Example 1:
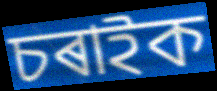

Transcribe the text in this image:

চৰাইক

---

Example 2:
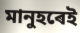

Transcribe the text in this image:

মানুহৰেই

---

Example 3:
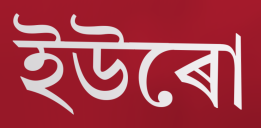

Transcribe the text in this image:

ইউৰো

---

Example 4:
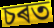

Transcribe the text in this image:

চৰত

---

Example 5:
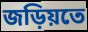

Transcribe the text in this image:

জড়িয়তে